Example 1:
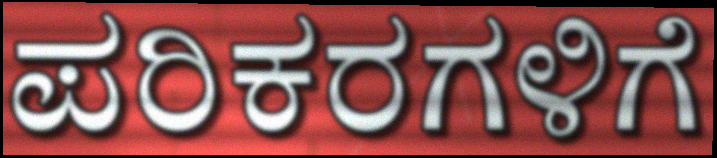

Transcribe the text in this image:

ಪರಿಕರಗಳಿಗೆ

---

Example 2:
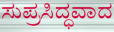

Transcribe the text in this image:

ಸುಪ್ರಸಿದ್ಧವಾದ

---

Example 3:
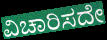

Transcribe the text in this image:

ವಿಚಾರಿಸದೇ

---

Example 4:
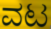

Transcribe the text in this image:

ವಟ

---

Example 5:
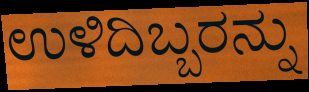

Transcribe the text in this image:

ಉಳಿದಿಬ್ಬರನ್ನು